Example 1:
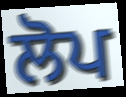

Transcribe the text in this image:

ਲੋਪ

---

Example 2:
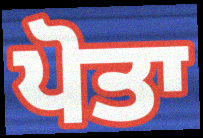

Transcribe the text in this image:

ਪੋਤਾ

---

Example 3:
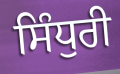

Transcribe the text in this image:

ਸਿੰਧੁਰੀ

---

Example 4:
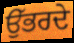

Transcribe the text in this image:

ਉੱਭਰਦੇ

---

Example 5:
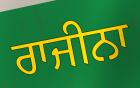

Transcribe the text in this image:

ਰਾਜੀਨਾ